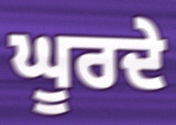
ਘੂਰਦੇ